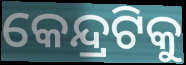
କେନ୍ଦ୍ରଟିକୁ